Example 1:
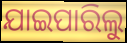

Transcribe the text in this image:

ଯାଇପାରିଲୁ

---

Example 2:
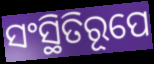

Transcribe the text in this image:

ସଂସ୍ଥିତିରୂପେ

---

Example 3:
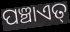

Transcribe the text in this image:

ପଞ୍ଚାଏତ୍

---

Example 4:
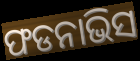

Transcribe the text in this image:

ଫଡନାଭିସ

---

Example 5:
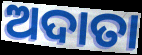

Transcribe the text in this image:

ଅଦାତା